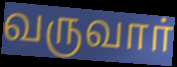
வருவார்